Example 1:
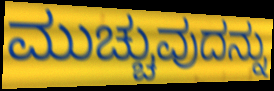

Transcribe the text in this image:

ಮುಚ್ಚುವುದನ್ನು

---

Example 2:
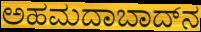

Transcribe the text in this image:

ಅಹಮದಾಬಾದ್‌ನ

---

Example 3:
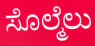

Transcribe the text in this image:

ಸೊಲ್ಮೆಲು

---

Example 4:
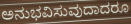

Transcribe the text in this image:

ಅನುಭವಿಸುವುದಾದರೂ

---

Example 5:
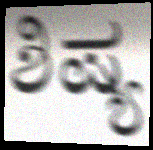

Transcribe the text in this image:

ಶಿಷ್ಯ